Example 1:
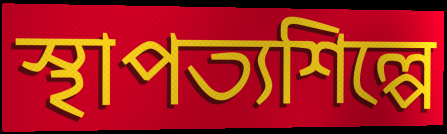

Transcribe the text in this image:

স্থাপত্যশিল্পে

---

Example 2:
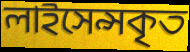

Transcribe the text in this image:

লাইসেন্সকৃত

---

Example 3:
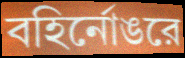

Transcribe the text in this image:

বহির্নোঙরে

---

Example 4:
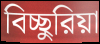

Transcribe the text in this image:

বিচ্ছুরিয়া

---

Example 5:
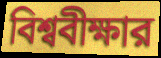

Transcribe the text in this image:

বিশ্ববীক্ষার